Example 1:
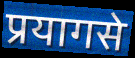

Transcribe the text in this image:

प्रयागसे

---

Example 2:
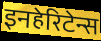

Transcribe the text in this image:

इनहेरिटेन्स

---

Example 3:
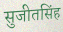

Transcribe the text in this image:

सुजीतसिंह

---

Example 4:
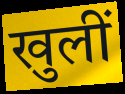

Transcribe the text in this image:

खुलीं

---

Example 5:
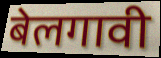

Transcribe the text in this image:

बेलगावी